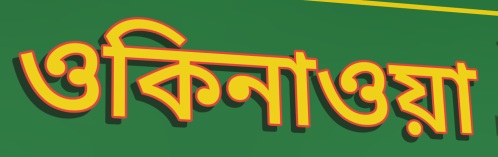
ওকিনাওয়া